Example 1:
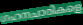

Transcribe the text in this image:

ഗഹനചാരികളെ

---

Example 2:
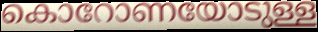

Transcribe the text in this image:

കൊറോണയോടുള്ള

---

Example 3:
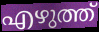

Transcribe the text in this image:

എഴുത്ത്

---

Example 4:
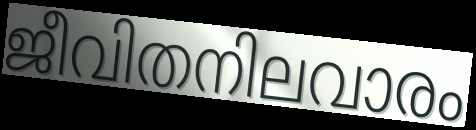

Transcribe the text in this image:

ജീവിതനിലവാരം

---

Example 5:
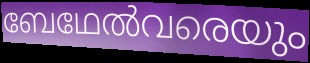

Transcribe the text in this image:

ബേഥേൽവരെയും